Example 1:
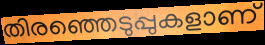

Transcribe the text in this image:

തിരഞ്ഞെടുപ്പുകളാണ്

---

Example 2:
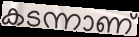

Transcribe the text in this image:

കടന്നാണ്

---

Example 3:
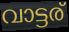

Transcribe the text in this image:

വാട്ടര്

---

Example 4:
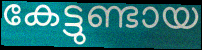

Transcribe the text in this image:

കേട്ടുണ്ടായ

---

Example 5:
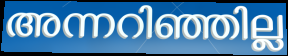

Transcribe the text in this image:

അന്നറിഞ്ഞില്ല